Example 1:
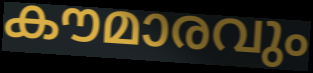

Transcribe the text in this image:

കൗമാരവും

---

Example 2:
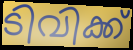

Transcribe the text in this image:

ടിവിക്ക്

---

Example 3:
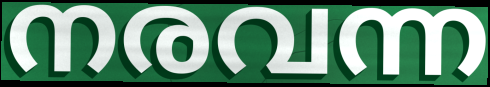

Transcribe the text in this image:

നരവന്ന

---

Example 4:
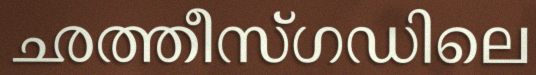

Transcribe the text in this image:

ഛത്തീസ്ഗഡിലെ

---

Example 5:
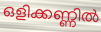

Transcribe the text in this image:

ഒളിക്കണ്ണിൽ